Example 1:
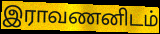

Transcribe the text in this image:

இராவணனிடம்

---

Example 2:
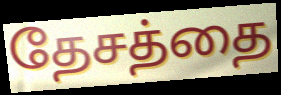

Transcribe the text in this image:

தேசத்தை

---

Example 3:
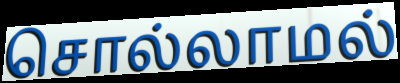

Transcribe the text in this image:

சொல்லாமல்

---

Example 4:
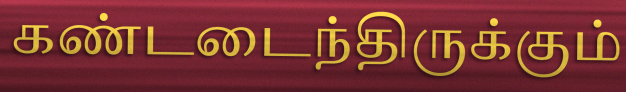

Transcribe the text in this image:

கண்டடைந்திருக்கும்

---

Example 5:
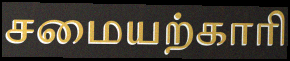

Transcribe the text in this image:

சமையற்காரி